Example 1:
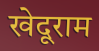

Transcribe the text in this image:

खेदूराम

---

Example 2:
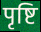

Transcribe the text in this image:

पृष्टि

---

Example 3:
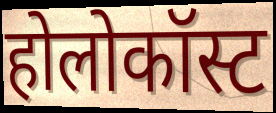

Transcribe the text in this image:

होलोकॉस्ट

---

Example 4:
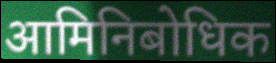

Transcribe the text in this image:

आमिनिबोधिक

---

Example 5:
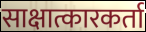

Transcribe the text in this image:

साक्षात्कारकर्ता